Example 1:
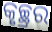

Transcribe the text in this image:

କୃଚ୍ଛ୍ରର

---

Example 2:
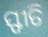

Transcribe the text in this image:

ସ୍ଫୀତି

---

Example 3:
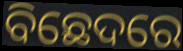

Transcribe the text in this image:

ବିଛେଦରେ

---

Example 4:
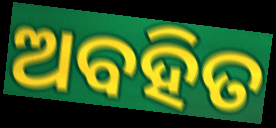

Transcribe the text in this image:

ଅବହିତ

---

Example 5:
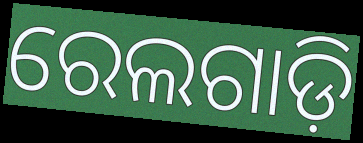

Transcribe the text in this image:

ରେଲଗାଡ଼ି